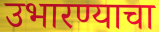
उभारण्याचा